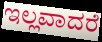
ಇಲ್ಲವಾದರೆ